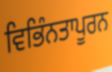
ਵਿਭਿੰਨਤਾਪੂਰਨ